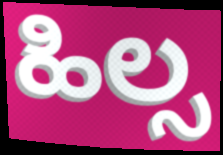
ಹಿಲ್ಸ